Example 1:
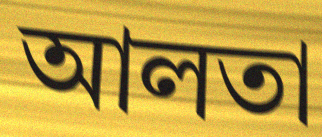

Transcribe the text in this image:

আলতা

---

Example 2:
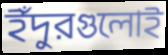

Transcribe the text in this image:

ইঁদুরগুলোই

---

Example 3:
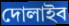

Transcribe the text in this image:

দোলাইব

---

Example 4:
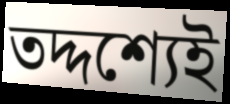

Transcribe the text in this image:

তদ্দশ্যেই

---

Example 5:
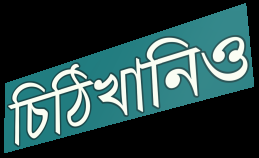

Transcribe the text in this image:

চিঠিখানিও